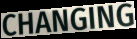
CHANGING